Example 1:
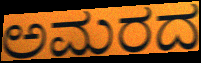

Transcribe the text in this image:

ಅಮರದ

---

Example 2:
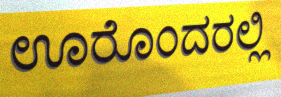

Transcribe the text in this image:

ಊರೊಂದರಲ್ಲಿ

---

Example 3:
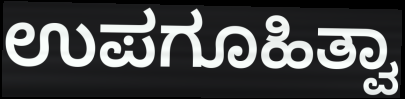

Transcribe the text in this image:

ಉಪಗೂಹಿತ್ವಾ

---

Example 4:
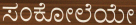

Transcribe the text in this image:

ಸಂಕೋಲೆಯೇ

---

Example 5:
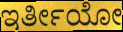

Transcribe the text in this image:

ಇರ್ತೀಯೋ